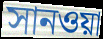
সানওয়া